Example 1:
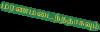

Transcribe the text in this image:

மரணமடைந்ததாகவும்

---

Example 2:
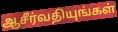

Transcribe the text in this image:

ஆசீர்வதியுங்கள்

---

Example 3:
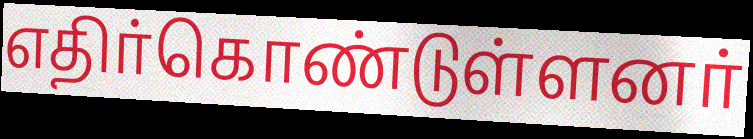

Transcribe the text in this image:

எதிர்கொண்டுள்ளனர்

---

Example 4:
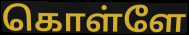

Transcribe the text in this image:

கொள்ளே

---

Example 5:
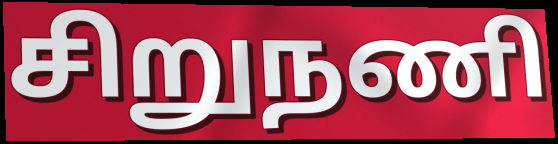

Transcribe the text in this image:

சிறுநணி